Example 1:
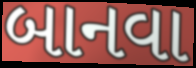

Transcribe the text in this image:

બાનવા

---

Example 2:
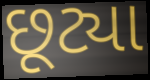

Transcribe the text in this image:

છૂટ્યા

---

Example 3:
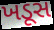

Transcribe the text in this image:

ખડૂસ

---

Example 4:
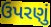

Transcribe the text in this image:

ઉપરણું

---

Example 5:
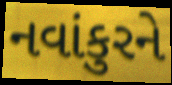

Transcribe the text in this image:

નવાંકુરને